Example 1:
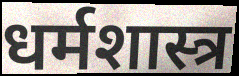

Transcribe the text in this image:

धर्मशास्त्र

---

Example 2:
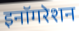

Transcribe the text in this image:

इनॉगरेशन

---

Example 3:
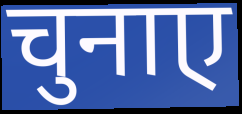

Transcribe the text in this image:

चुनाए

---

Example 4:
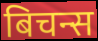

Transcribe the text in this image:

बिचन्स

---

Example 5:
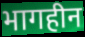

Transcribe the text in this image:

भागहीन